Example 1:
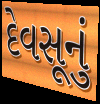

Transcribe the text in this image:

દેવસૂનું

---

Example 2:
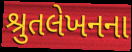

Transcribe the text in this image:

શ્રુતલેખનના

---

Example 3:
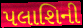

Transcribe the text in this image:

પલાશિની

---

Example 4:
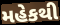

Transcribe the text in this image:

મહેકથી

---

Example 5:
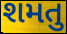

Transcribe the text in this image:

શમતુ